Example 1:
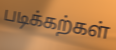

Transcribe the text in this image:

படிக்கற்கள்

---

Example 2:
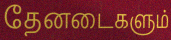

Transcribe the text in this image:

தேனடைகளும்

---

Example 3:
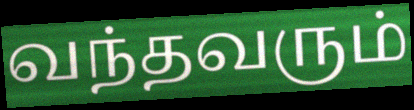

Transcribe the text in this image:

வந்தவரும்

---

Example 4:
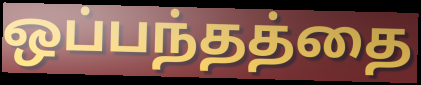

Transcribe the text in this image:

ஒப்பந்தத்தை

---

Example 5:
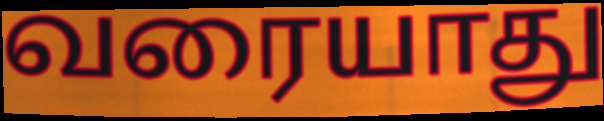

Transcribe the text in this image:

வரையாது